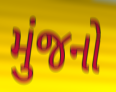
મુંજનો